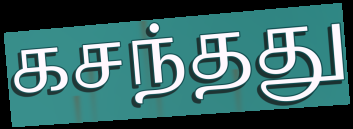
கசந்தது